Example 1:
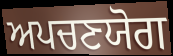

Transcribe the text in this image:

ਅਪਚਣਯੋਗ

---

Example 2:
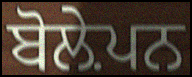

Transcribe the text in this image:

ਬੋਲ਼ੇਪਨ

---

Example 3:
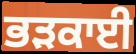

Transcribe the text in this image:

ਭੜਕਾਈ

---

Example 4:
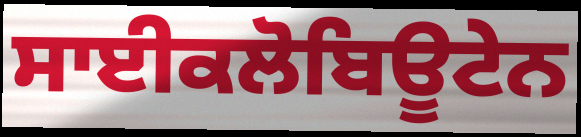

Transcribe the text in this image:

ਸਾਈਕਲੋਬਿਊਟੇਨ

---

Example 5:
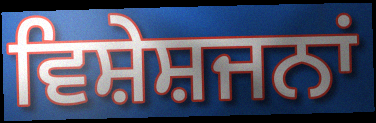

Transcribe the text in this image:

ਵਿਸ਼ੇਸ਼ਜਨਾਂ